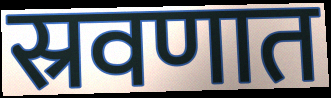
स्रवणात